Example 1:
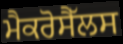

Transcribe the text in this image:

ਮੈਕਰੋਸੈੱਲਸ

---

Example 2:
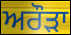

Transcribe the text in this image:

ਅਰੌੜਾ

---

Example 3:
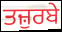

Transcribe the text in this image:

ਤਜ਼ੁਰਬੇ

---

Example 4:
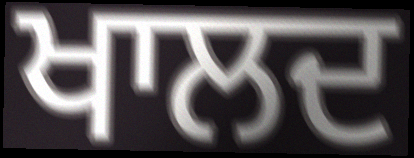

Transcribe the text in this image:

ਖਾਲਦ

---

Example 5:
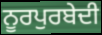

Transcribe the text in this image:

ਨੂਰਪੁਰਬੇਦੀ